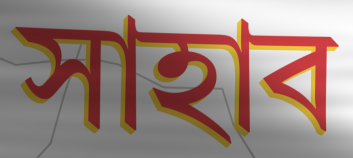
সাহাব